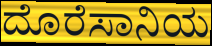
ದೊರೆಸಾನಿಯ